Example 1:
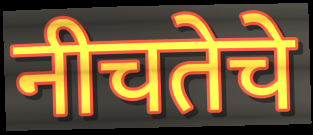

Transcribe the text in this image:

नीचतेचे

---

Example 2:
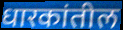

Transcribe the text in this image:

धारकांतील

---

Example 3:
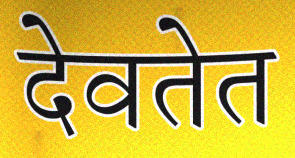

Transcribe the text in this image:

देवतेत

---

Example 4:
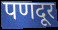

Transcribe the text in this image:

पणदूर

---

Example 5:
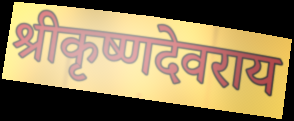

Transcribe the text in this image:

श्रीकृष्णदेवराय